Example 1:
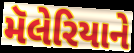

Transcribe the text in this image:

મૅલેરિયાને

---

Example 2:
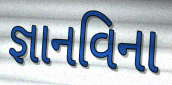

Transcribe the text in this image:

જ્ઞાનવિના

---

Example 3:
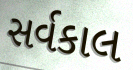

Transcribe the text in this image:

સર્વકાલ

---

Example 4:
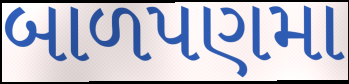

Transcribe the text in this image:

બાળપણમા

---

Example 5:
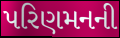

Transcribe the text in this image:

પરિણમનની